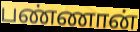
பண்ணான்